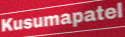
Kusumapatel